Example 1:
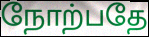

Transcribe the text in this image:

நோற்பதே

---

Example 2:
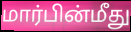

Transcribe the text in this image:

மார்பின்மீது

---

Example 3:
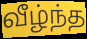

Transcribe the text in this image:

வீழ்ந்த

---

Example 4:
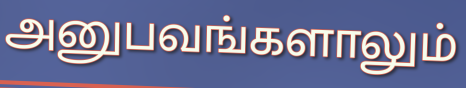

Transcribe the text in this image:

அனுபவங்களாலும்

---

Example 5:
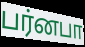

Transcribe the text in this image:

பர்னபா